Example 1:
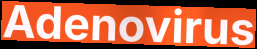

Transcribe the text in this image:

Adenovirus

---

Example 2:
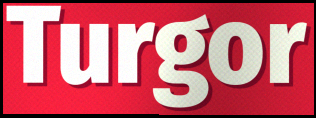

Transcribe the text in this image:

Turgor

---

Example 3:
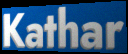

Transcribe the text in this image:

Kathar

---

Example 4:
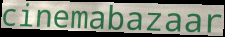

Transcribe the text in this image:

cinemabazaar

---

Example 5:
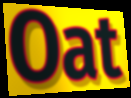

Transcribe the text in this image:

Oat